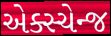
એક્સ્ચેન્જ